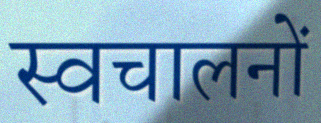
स्वचालनों